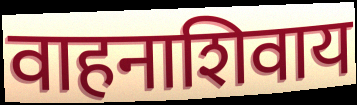
वाहनाशिवाय